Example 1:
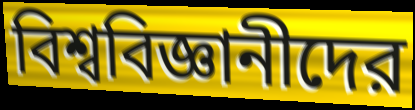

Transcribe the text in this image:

বিশ্ববিজ্ঞানীদের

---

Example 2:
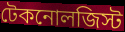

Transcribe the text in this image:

টেকনোলজিস্ট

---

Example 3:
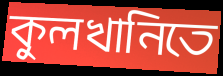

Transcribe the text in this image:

কুলখানিতে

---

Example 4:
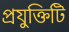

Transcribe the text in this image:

প্রযুক্তিটি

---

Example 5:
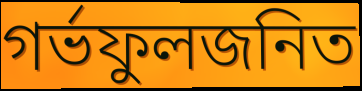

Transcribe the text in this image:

গর্ভফুলজনিত